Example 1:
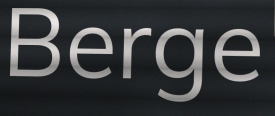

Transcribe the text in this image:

Berge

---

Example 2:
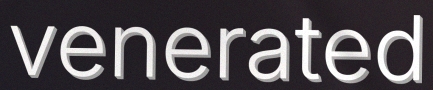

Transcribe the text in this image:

venerated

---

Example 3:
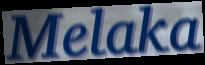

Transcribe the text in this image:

Melaka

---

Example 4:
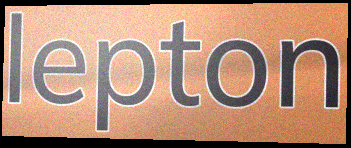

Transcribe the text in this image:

lepton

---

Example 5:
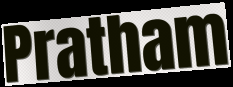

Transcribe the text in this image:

Pratham